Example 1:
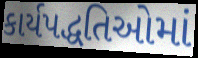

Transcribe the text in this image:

કાર્યપદ્ધતિઓમાં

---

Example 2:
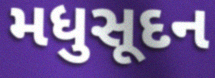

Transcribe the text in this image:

મધુસૂદન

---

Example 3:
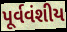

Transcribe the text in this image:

પૂર્વવંશીય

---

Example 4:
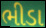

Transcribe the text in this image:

ભીડા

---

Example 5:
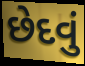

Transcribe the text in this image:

છેદવું